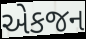
એકજન